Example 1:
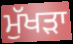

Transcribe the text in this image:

ਮੁੱਖੜਾ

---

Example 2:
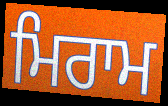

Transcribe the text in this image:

ਮਿਰਾਮ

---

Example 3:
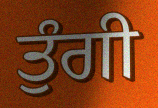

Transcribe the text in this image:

ਤੁੰਗੀ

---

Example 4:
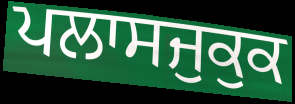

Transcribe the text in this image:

ਪਲਾਸਜੁਕੁਕ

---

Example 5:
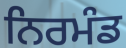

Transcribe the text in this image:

ਨਿਰਮੰਡ